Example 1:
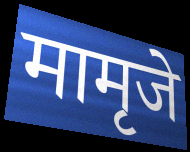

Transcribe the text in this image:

मामृजे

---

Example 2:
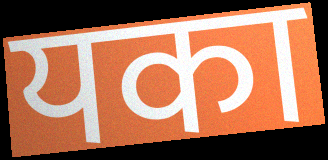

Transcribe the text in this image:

यका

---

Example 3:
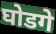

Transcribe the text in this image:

घोडगे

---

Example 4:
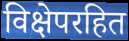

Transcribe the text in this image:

विक्षेपरहित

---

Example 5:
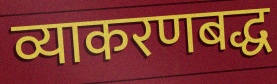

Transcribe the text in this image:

व्याकरणबद्ध